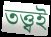
তত্ত্বই